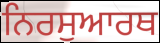
ਨਿਰਸੁਆਰਥ